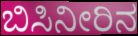
ಬಿಸಿನೀರಿನ